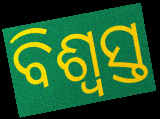
ବିଶ୍ଵସ୍ତ